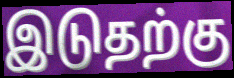
இடுதற்கு